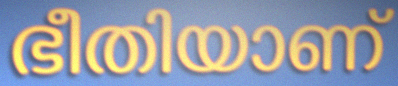
ഭീതിയാണ്